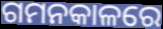
ଗମନକାଳରେ